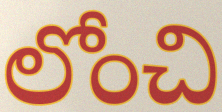
లోంచి